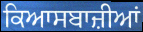
ਕਿਆਸਬਾਜ਼ੀਆਂ